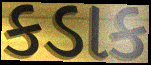
કડાક